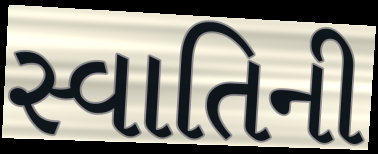
સ્વાતિની